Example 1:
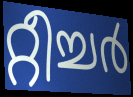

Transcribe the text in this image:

റ്റീച്ചർ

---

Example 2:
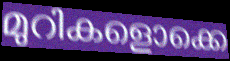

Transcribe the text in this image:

മുറികളൊക്കെ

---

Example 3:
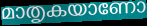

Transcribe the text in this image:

മാതൃകയാണോ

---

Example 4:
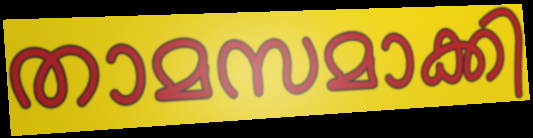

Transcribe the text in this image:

താമസമാക്കി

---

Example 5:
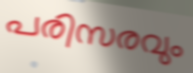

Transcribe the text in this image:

പരിസരവും